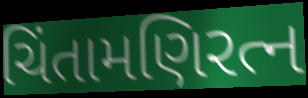
ચિંતામણિરત્ન